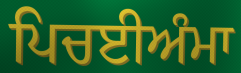
ਪਿਚਈਅੰਮਾ